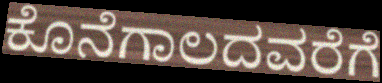
ಕೊನೆಗಾಲದವರೆಗೆ